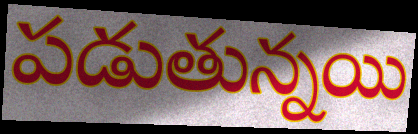
పడుతున్నయి